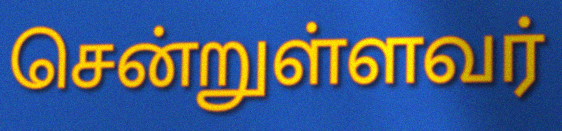
சென்றுள்ளவர்